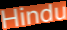
Hindu